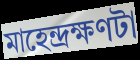
মাহেন্দ্রক্ষণটা